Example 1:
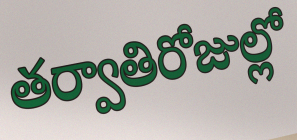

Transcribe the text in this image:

తర్వాతిరోజుల్లో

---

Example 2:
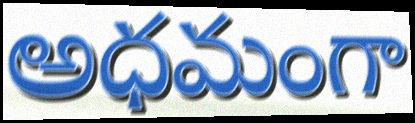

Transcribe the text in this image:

అధమంగా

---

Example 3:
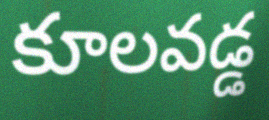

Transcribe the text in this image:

కూలవడ్డ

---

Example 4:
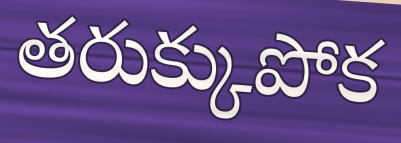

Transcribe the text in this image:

తరుక్కుపోక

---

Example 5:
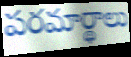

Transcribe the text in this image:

పరమార్థాలు